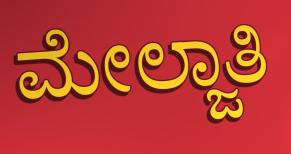
ಮೇಲ್ಜಾತಿ